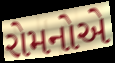
રોમનોએ